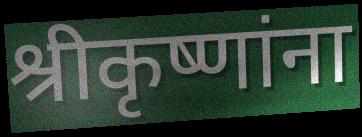
श्रीकृष्णांना